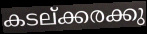
കടല്ക്കരക്കു